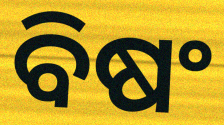
ବିଷଂ